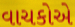
વાચકોએ